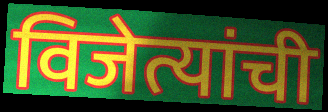
विजेत्यांची